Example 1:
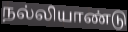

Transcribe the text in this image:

நல்லியாண்டு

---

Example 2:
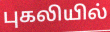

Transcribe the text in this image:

புகலியில்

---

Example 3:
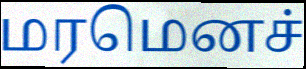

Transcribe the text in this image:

மரமெனச்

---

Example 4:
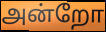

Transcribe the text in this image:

அன்றோ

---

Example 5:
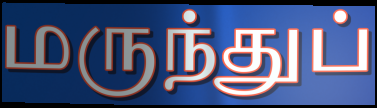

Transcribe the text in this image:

மருந்துப்